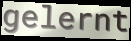
gelernt